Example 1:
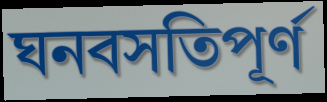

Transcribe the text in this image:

ঘনবসতিপূর্ণ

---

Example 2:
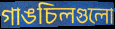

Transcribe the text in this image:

গাঙচিলগুলো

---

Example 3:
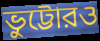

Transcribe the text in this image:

ভুট্টোরও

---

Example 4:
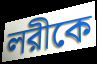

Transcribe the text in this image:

লরীকে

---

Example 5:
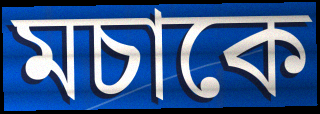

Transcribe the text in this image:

মচাকে